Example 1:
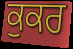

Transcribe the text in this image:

ਕੁਕਰ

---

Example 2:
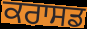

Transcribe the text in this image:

ਕਰਾਸਡ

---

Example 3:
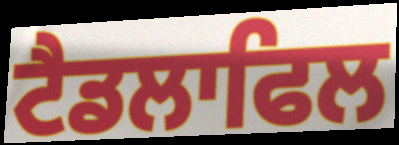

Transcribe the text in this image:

ਟੈਡਲਾਫਿਲ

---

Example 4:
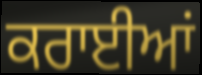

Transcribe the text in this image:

ਕਰਾਈਆਂ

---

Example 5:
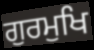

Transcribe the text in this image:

ਗੁਰਮੁਖਿ